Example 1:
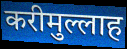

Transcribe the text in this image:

करीमुल्लाह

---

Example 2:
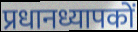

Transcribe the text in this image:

प्रधानध्यापकों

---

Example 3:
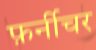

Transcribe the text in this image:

फ़र्नीचर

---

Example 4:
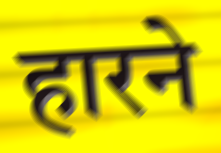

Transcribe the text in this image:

हारने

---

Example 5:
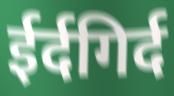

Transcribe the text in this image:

ईर्दगिर्द